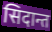
सिदान्त